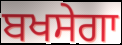
ਬਖਸੇਗਾ